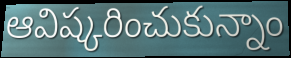
ఆవిష్కరించుకున్నాం